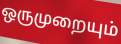
ஒருமுறையும்